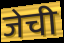
जेची